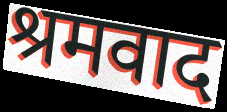
श्रमवाद